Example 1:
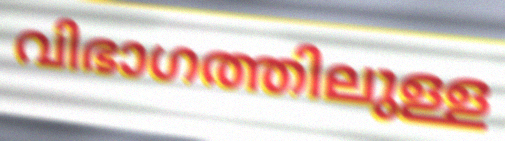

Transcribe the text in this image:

വിഭാഗത്തിലുള്ള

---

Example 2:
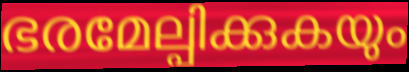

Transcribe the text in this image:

ഭരമേല്പിക്കുകയും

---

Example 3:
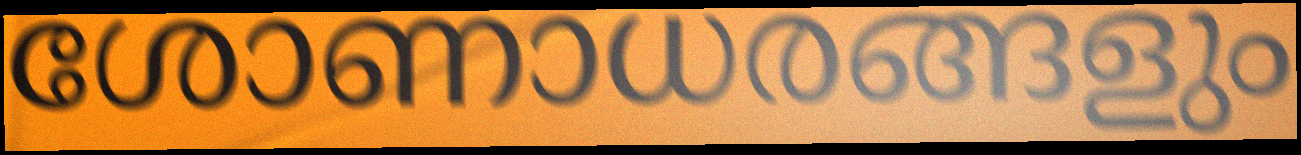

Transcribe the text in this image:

ശോണാധരങ്ങളും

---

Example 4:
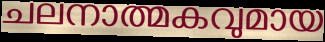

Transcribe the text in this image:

ചലനാത്മകവുമായ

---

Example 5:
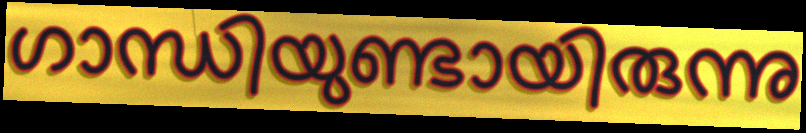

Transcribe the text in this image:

ഗാന്ധിയുണ്ടായിരുന്നു